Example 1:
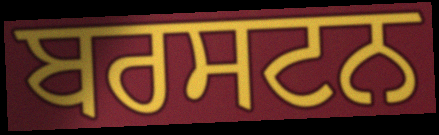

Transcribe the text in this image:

ਬਰਸਟਨ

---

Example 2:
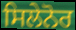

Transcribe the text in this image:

ਸਿਲੇਨੋਰ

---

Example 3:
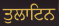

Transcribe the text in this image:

ਤੁਲਾਟਿਨ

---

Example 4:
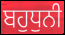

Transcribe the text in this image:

ਬਹੁਧੁਨੀ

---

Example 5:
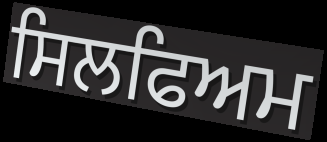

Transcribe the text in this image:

ਸਿਲਫਿਅਮ